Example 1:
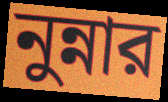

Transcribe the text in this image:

নুন্নার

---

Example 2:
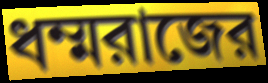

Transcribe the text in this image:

ধম্মরাজের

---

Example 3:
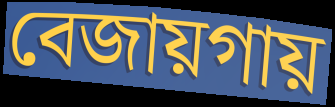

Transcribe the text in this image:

বেজায়গায়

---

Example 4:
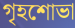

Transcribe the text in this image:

গৃহশোভা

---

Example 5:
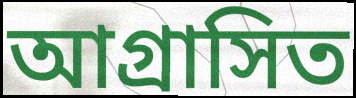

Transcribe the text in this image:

আগ্রাসিত